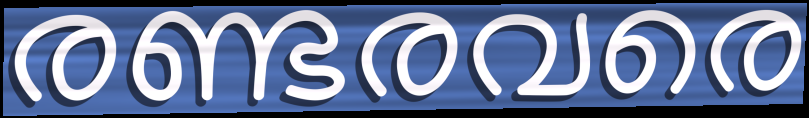
രണ്ടരവരെ